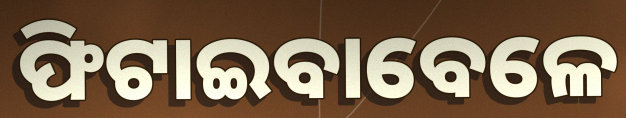
ଫିଟାଇବାବେଳେ